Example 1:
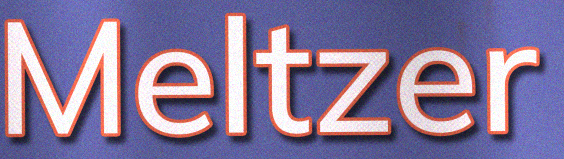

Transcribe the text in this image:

Meltzer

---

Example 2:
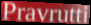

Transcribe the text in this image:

Pravrutti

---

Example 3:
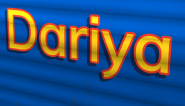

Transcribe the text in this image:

Dariya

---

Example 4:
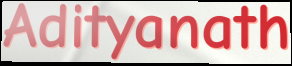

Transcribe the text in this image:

Adityanath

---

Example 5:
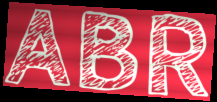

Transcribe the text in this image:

ABR